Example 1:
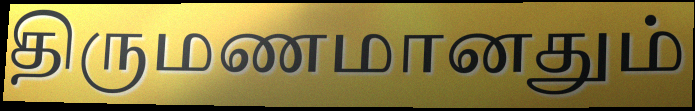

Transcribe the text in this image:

திருமணமானதும்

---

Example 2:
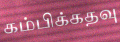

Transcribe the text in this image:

கம்பிக்கதவு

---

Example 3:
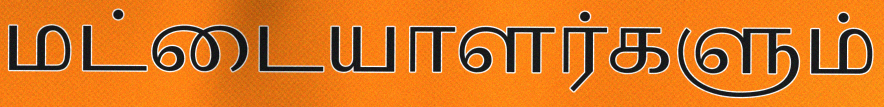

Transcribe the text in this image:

மட்டையாளர்களும்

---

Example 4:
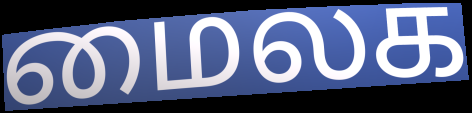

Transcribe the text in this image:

மைலக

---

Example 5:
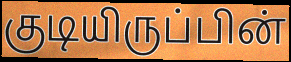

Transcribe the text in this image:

குடியிருப்பின்